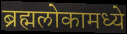
ब्रह्मलोकामध्ये